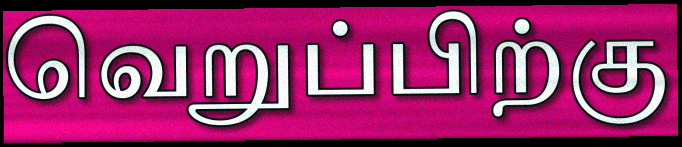
வெறுப்பிற்கு